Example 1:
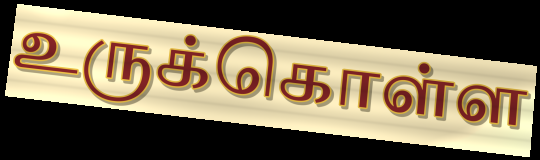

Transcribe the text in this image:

உருக்கொள்ள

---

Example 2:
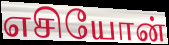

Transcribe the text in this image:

எசியோன்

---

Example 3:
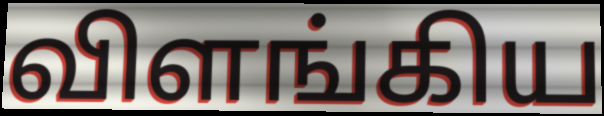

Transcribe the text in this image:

விளங்கிய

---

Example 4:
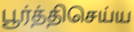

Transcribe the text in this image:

பூர்த்திசெய்ய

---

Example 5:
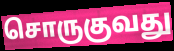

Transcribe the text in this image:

சொருகுவது